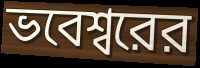
ভবেশ্বরের